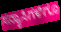
ಸನ್ಯಾಸಿಗಳಿಗೂ